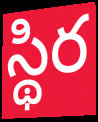
స్థిర